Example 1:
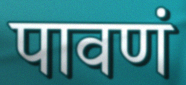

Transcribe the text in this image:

पावणं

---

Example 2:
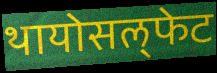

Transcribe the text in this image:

थायोसल्फेट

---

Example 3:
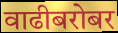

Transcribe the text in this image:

वाढीबरोबर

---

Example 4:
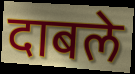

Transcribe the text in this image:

दाबले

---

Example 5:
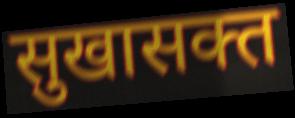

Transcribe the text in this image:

सुखासक्त